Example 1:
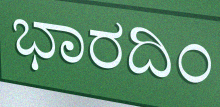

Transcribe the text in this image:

ಭಾರದಿಂ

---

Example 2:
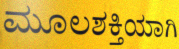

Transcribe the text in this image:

ಮೂಲಶಕ್ತಿಯಾಗಿ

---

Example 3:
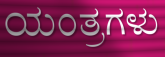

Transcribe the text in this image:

ಯಂತ್ರಗಳು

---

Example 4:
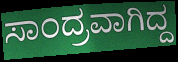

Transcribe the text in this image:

ಸಾಂದ್ರವಾಗಿದ್ದ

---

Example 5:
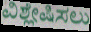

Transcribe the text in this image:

ವಿಶ್ಲೇಷಿಸಲು